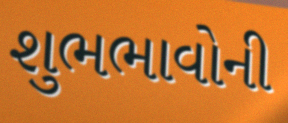
શુભભાવોની